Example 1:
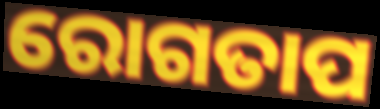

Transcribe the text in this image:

ରୋଗତାପ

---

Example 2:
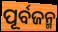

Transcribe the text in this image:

ପୂର୍ବଜନ୍ମ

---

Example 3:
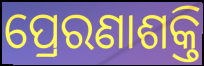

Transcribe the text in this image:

ପ୍ରେରଣାଶକ୍ତି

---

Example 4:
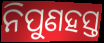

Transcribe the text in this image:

ନିପୁଣହସ୍ତ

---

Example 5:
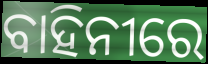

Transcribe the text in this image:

ବାହିନୀରେ